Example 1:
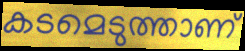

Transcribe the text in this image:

കടമെടുത്താണ്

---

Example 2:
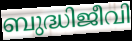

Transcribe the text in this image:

ബുദ്ധിജീവി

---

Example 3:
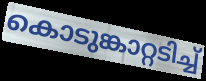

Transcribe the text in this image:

കൊടുങ്കാറ്റടിച്ച്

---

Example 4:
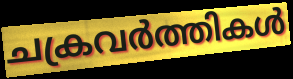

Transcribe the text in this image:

ചക്രവർത്തികൾ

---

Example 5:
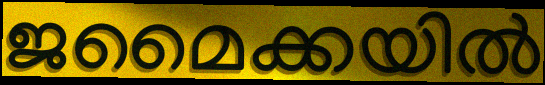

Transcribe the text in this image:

ജമൈക്കയിൽ